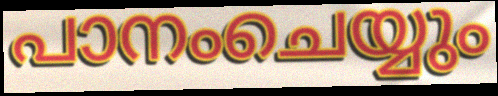
പാനംചെയ്യും